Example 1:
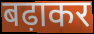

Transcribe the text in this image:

बढ़ाकर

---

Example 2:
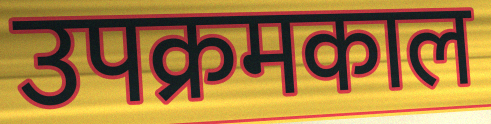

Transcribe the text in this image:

उपक्रमकाल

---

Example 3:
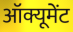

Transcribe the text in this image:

ऑक्यूमेंट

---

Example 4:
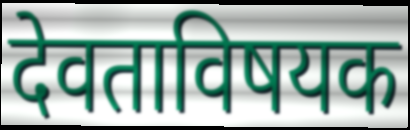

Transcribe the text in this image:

देवताविषयक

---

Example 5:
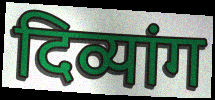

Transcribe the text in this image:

दिव्यांग